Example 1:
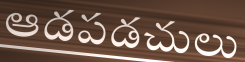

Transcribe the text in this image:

ఆడపడచులు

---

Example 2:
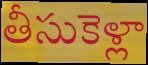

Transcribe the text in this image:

తీసుకెళ్లా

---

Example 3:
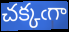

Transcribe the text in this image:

చక్కఁగా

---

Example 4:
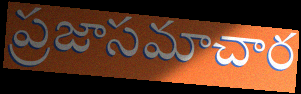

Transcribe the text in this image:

ప్రజాసమాచార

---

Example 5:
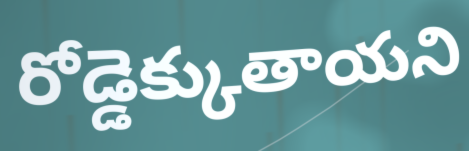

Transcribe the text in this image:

రోడ్డెక్కుతాయని